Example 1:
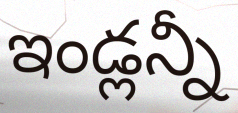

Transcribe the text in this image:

ఇండ్లన్నీ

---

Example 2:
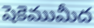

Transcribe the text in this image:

షెకెముమీద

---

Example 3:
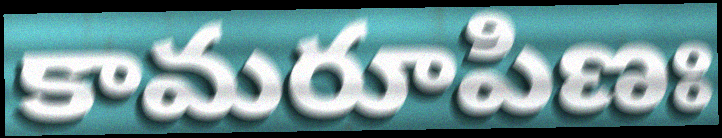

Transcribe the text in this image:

కామరూపిణః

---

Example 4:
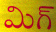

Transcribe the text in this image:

మిగ్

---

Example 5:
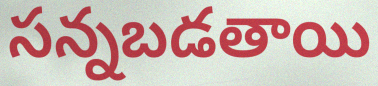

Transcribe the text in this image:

సన్నబడతాయి